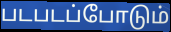
படபடப்போடும்